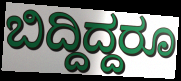
ಬಿದ್ದಿದ್ದರೂ